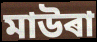
মাউৰা